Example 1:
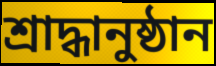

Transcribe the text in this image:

শ্রাদ্ধানুষ্ঠান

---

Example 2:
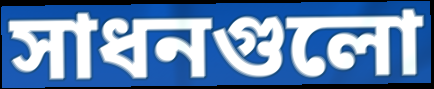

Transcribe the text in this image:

সাধনগুলো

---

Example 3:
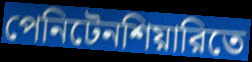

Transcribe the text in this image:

পেনিটেনশিয়ারিতে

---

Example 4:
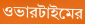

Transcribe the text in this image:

ওভারটাইমের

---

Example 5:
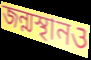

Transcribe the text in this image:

জন্মস্থানও